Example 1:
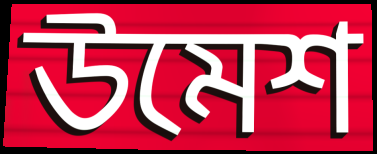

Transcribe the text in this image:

উমেশ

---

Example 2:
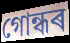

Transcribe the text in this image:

গোন্ধৰ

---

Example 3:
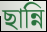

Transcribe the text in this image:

ছান্নি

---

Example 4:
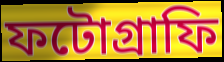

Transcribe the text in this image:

ফটোগ্ৰাফি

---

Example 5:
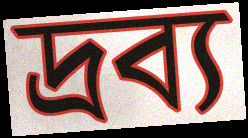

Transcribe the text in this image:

দ্ৰব্য